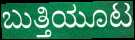
ಬುತ್ತಿಯೂಟ